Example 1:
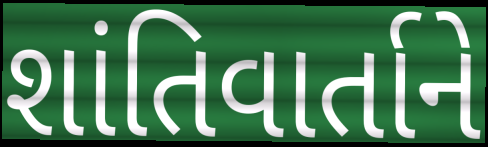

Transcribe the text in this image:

શાંતિવાર્તાને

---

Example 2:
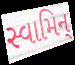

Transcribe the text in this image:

સ્વામિન્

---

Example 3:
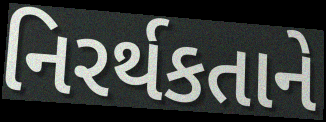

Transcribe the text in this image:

નિરર્થકતાને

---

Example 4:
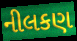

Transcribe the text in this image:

નીલકણ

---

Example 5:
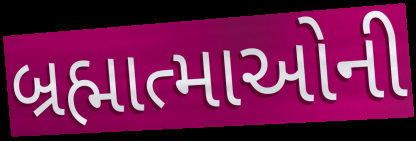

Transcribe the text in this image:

બ્રહ્માત્માઓની